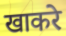
खाकरे